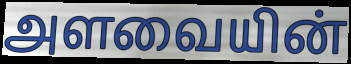
அளவையின்